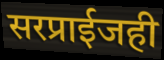
सरप्राईजही